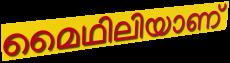
മൈഥിലിയാണ്